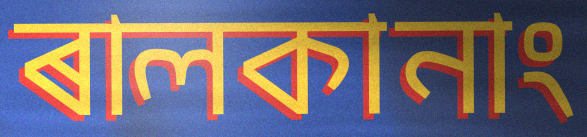
ৰালকানাং